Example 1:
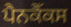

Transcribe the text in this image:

ਪੈਨਕੈੱਕਸ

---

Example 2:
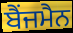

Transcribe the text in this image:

ਬੈਂਜਮੈਨ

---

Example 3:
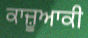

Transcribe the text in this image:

ਕਾਜ਼ੂਆਕੀ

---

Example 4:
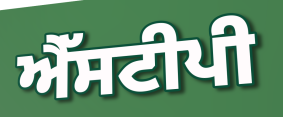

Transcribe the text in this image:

ਐੱਸਟੀਪੀ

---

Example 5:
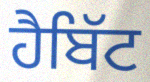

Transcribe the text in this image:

ਹੈਬਿੱਟ